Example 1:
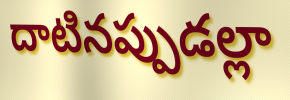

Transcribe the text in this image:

దాటినప్పుడల్లా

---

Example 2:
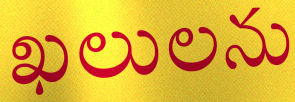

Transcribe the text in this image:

ఖలులను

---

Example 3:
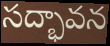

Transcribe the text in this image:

సద్భావన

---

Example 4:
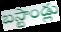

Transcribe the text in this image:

బస్టాండ్లు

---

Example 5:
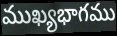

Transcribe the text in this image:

ముఖ్యభాగము